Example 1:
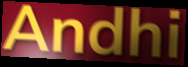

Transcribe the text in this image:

Andhi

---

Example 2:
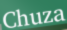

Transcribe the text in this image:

Chuza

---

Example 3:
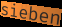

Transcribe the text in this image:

sieben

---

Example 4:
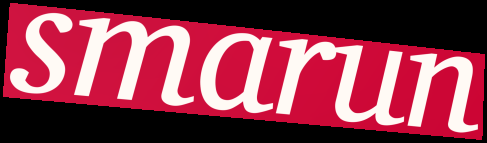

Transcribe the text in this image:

smarun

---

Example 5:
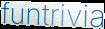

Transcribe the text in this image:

funtrivia